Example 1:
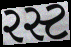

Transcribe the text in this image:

રસ્ટ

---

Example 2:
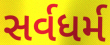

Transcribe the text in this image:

સર્વધર્મ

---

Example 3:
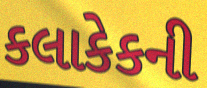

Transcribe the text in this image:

કલાકેકની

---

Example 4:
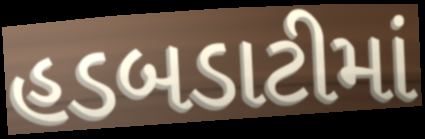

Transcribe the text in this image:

હડબડાટીમાં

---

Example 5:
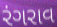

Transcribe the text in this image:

રંગરાવ